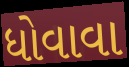
ધોવાવા